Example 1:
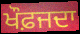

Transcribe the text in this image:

ਖੌਫ਼ਜਦਾ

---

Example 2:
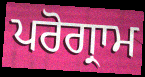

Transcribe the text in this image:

ਪਰੋਗ੍ਰਾਮ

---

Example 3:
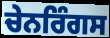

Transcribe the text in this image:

ਚੇਨਰਿੰਗਸ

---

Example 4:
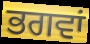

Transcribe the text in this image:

ਭਗਵਾਂ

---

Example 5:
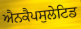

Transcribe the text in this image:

ਐਨਕੈਪਸੁਲੇਟਿਡ